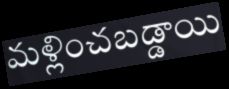
మళ్లించబడ్డాయి